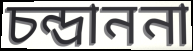
চন্দ্রাননা